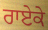
ਰਾਏਕੇ